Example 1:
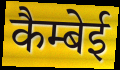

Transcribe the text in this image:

कैम्बेई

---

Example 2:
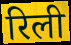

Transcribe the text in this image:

रिली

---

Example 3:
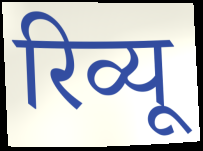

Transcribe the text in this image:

रिव्यू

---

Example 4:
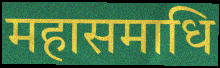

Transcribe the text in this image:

महासमाधि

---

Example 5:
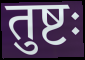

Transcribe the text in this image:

तुष्टः